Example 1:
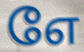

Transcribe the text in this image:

எே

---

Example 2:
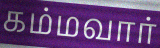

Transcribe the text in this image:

கம்மவார்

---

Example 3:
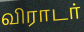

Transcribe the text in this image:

விராடர்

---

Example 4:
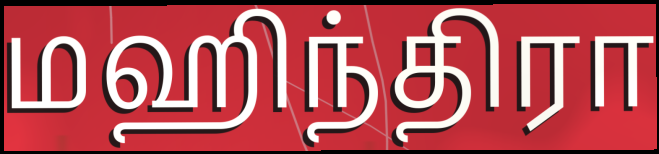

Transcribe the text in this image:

மஹிந்திரா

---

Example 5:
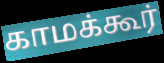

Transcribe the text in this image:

காமக்கூர்